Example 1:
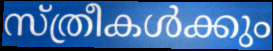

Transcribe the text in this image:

സ്ത്രീകൾക്കും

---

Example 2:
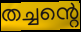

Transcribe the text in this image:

തച്ചന്റെ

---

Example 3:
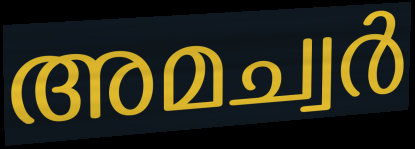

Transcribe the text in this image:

അമച്വർ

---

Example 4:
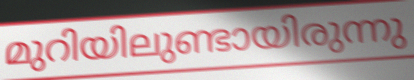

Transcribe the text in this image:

മുറിയിലുണ്ടായിരുന്നു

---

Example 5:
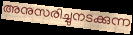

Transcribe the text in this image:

അനുസരിച്ചുനടക്കുന്ന